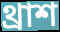
থ্রাশ